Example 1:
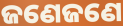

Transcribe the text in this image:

ଜଣେଜଣେ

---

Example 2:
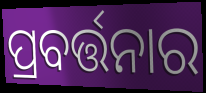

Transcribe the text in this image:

ପ୍ରବର୍ତ୍ତନାର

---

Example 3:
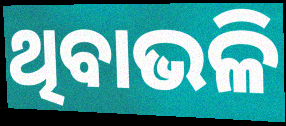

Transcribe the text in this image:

ଥିବାଭଳି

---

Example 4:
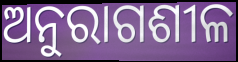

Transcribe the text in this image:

ଅନୁରାଗଶୀଳ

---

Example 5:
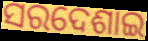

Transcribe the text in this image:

ସରଦେଶାଇ